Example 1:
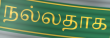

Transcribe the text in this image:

நல்லதாக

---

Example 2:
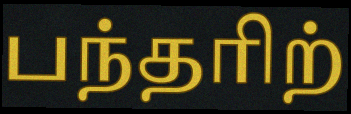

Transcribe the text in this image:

பந்தரிற்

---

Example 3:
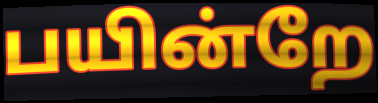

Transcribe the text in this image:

பயின்றே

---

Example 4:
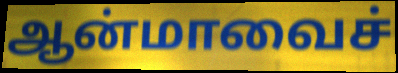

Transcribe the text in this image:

ஆன்மாவைச்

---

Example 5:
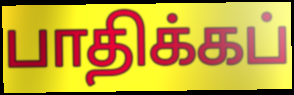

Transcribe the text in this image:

பாதிக்கப்